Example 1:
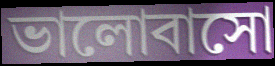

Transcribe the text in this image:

ভালোবাসো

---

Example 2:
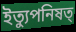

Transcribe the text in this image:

ইত্যুপনিষত্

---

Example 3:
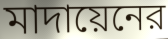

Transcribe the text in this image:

মাদায়েনের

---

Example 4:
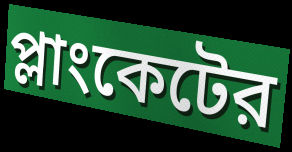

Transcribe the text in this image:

প্লাংকেটের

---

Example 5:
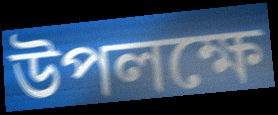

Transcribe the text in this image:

উপলক্ষে